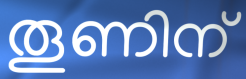
തൂണിന്